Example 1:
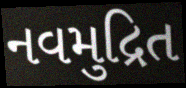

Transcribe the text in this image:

નવમુદ્રિત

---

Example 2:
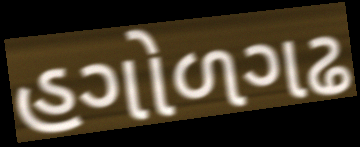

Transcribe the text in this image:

હગોળગઢ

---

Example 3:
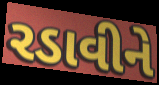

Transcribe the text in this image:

રડાવીને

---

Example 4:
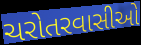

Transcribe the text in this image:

ચરોતરવાસીઓ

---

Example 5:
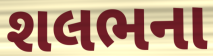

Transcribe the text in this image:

શલભના